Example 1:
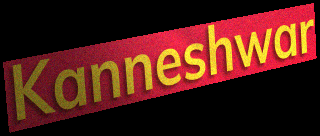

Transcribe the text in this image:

Kanneshwar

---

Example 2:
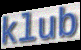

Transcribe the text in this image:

klub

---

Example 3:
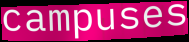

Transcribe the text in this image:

campuses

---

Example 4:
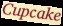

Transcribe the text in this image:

Cupcake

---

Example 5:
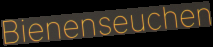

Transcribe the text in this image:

Bienenseuchen